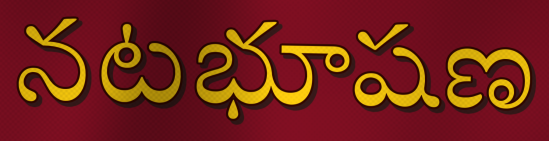
నటభూషణ